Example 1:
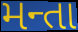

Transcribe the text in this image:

મન્તા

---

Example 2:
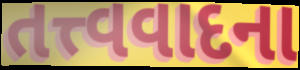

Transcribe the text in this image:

તત્ત્વવાદના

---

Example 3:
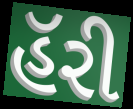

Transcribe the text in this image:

હૅરી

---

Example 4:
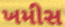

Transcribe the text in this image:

ખમીસ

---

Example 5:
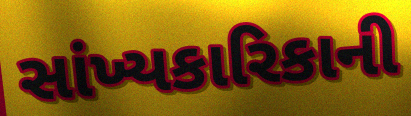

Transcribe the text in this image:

સાંખ્યકારિકાની